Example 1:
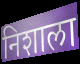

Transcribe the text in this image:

निशाला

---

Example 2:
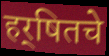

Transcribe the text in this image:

हर्षितचे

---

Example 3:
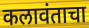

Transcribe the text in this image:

कलावंताचा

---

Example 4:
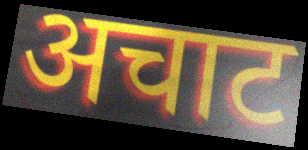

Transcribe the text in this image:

अचाट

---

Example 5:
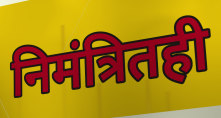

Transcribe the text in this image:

निमंत्रितही